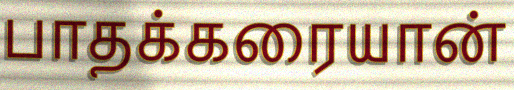
பாதக்கரையான்